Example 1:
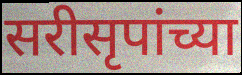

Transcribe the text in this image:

सरीसृपांच्या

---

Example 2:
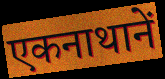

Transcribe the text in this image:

एकनाथानें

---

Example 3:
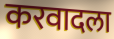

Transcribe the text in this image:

करवादला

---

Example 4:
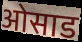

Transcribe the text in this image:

ओसाड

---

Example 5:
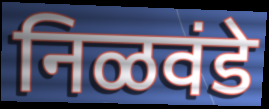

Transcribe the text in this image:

निळवंडे